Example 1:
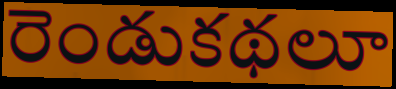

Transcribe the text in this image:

రెండుకథలూ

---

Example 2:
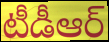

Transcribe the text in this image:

టీడీఆర్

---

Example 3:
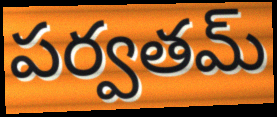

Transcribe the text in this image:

పర్వతమ్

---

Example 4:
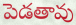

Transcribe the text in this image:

పెడతావు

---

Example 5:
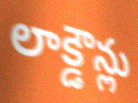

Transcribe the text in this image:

లాక్డౌన్లు